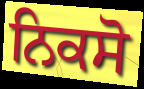
ਨਿਕਸੋ